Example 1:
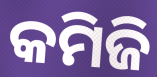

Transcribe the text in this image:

କମିଜି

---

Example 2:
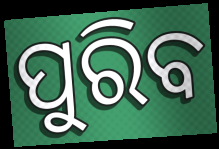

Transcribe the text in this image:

ପୁରିବ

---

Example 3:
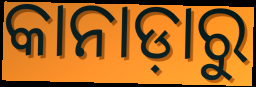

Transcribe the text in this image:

କାନାଡ଼ାରୁ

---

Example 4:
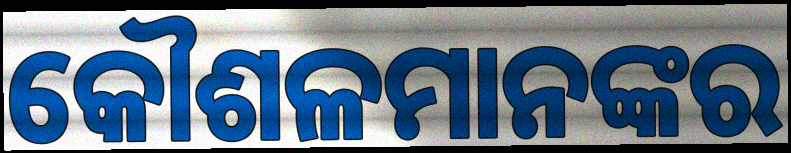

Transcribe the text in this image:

କୌଶଳମାନଙ୍କର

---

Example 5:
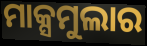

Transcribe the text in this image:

ମାକ୍ସମୁଲାର